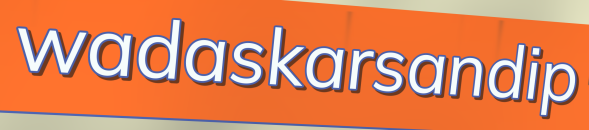
wadaskarsandip